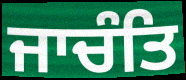
ਜਾਚੰਤਿ